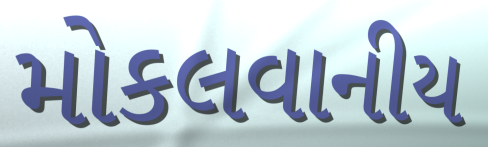
મોકલવાનીય